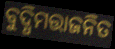
ବୁଦ୍ଧିମତ୍ତାଜନିତ